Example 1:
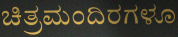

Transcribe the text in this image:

ಚಿತ್ರಮಂದಿರಗಳೂ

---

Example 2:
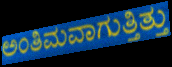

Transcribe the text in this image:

ಅಂತಿಮವಾಗುತ್ತಿತ್ತು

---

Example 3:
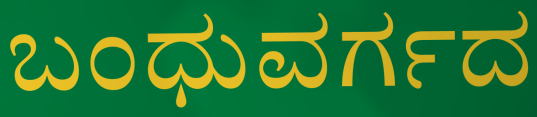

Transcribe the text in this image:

ಬಂಧುವರ್ಗದ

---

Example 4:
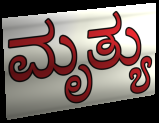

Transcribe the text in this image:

ಮೃತ್ಯು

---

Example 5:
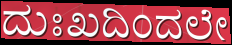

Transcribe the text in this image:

ದುಃಖದಿಂದಲೇ